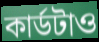
কার্ডটাও